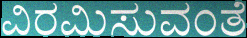
ವಿರಮಿಸುವಂತೆ